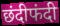
छंदीफंदी